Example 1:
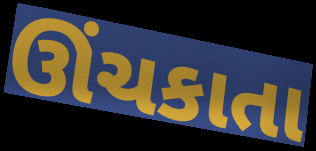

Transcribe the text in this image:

ઊંચકાતા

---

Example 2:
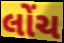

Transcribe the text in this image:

લોંચ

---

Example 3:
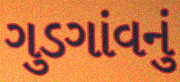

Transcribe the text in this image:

ગુડગાંવનું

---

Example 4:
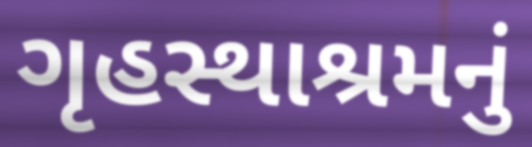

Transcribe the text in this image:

ગૃહસ્થાશ્રમનું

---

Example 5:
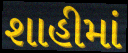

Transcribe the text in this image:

શાહીમાં